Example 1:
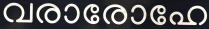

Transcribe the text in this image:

വരാരോഹേ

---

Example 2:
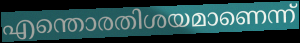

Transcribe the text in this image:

എന്തൊരതിശയമാണെന്ന്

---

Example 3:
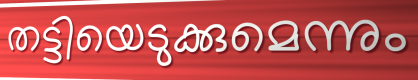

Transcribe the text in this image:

തട്ടിയെടുക്കുമെന്നും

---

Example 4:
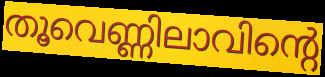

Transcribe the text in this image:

തൂവെണ്ണിലാവിന്റെ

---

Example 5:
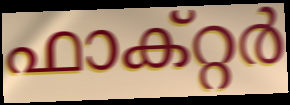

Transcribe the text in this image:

ഫാക്റ്റർ